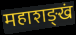
महाशङ्खं